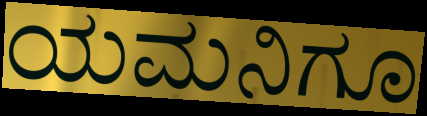
ಯಮನಿಗೂ